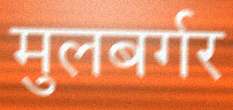
मुलबर्गर